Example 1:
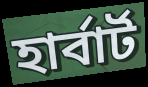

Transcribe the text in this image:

হাৰ্বাৰ্ট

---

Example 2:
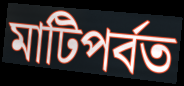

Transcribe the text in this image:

মাটিপৰ্বত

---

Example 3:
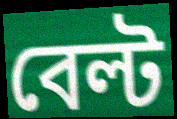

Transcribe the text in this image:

বেল্ট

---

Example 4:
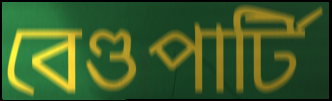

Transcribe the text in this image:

বেণ্ডপাৰ্টি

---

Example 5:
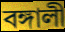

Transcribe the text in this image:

বঙ্গালী